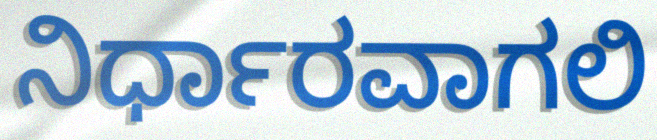
ನಿರ್ಧಾರವಾಗಲಿ